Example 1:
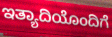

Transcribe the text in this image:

ಇತ್ಯಾದಿಯೊಂದಿಗೆ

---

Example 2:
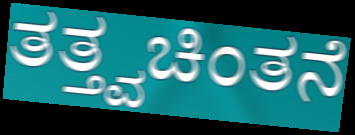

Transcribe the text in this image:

ತತ್ತ್ವಚಿಂತನೆ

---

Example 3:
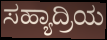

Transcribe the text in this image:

ಸಹ್ಯಾದ್ರಿಯ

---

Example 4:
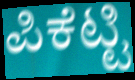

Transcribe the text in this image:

ಪಿಕೆಟ್ಟಿ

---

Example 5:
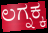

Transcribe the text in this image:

ಲಗ್ನಕ್ಕ